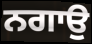
ਨਗਾਉ